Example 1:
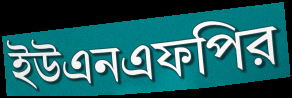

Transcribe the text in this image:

ইউএনএফপির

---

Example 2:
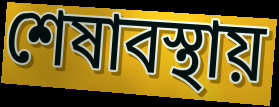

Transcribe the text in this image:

শেষাবস্থায়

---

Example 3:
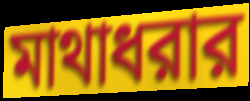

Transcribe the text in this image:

মাথাধরার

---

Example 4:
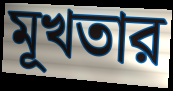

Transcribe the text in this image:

মূখতার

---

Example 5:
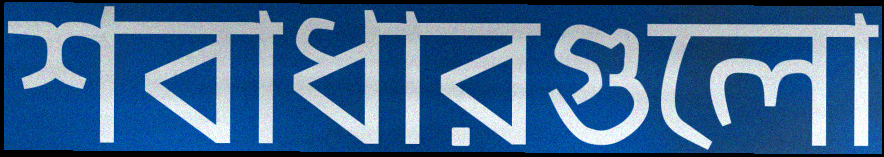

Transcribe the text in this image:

শবাধারগুলো